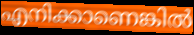
എനിക്കാണെങ്കിൽ